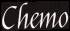
Chemo